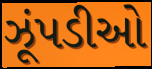
ઝૂંપડીઓ